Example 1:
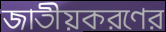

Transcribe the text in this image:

জাতীয়করণের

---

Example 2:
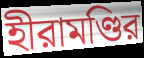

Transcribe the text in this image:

হীরামণ্ডির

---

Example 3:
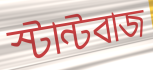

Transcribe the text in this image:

স্টান্টবাজ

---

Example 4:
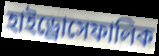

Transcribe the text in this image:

হাইড্রোসেফালিক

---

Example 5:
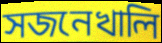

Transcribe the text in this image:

সজনেখালি